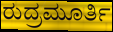
ರುದ್ರಮೂರ್ತಿ